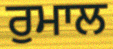
ਰੁਮਾਲ